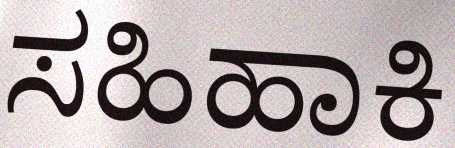
ಸಹಿಹಾಕಿ